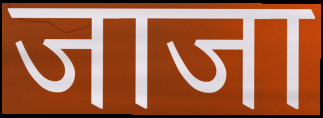
जाजा